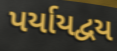
પર્યાયદ્વય